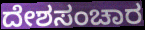
ದೇಶಸಂಚಾರ